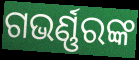
ଗଭର୍ଣ୍ଣରଙ୍କ